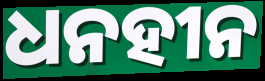
ଧନହୀନ